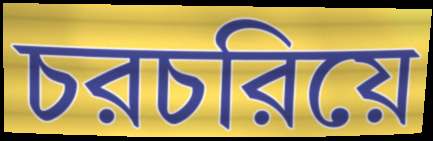
চরচরিয়ে